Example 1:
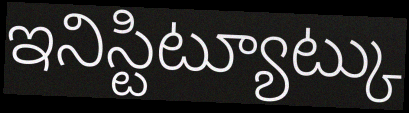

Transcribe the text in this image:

ఇనిస్టిట్యూట్కు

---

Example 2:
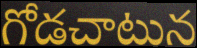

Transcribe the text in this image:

గోడచాటున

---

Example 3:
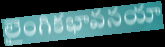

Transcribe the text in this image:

లైంగికభావనయా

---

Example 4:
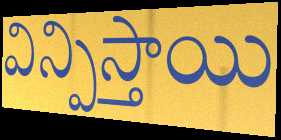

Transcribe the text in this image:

విన్పిస్తాయి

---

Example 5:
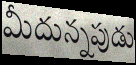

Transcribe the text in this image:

మీదున్నపుడు